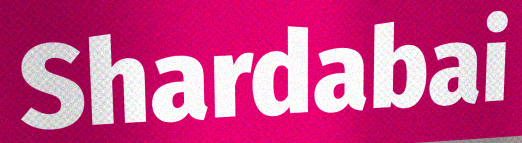
Shardabai